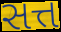
સત્ત